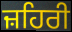
ਜ਼ਹਿਰੀ